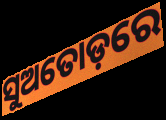
ସୁଅତୋଡ଼ରେ